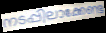
നടപ്പിലാക്കേണ്ട